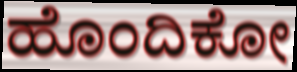
ಹೊಂದಿಕೋ